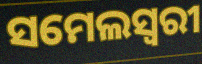
ସମେଲସ୍ୱରୀ